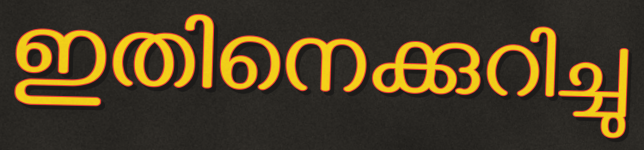
ഇതിനെക്കുറിച്ചു